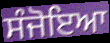
ਸੰਜੋਇਆ